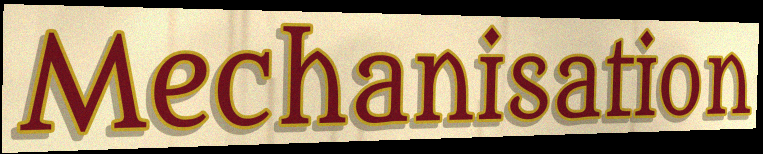
Mechanisation